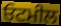
ਓਟਮੀਲ